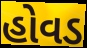
હોવડ